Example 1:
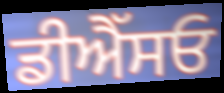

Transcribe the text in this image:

ਡੀਐੱਸਓ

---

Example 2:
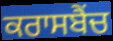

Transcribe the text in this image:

ਕਰਾਸਬੈਂਚ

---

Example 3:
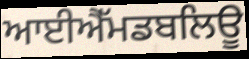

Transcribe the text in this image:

ਆਈਐੱਮਡਬਲਿਊ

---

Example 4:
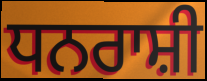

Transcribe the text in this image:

ਧਨਰਾਸ਼ੀ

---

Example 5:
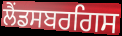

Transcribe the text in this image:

ਲੈਂਡਸਬਰਗਿਸ